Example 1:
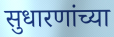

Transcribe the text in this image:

सुधारणांच्या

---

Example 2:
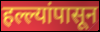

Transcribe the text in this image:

हल्ल्यांपासून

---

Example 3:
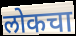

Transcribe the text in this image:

लोकचा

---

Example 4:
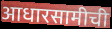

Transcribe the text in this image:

आधारसामीची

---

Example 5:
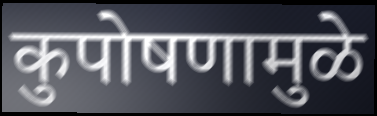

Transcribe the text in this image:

कुपोषणामुळे